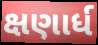
ક્ષણાર્ધ